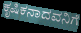
ಕೃಷಿಕನಾದವನಿಗೆ